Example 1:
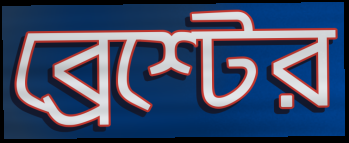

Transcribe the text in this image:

ব্রেশ্টের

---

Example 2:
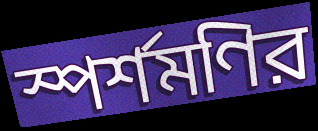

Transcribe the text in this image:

স্পর্শমণির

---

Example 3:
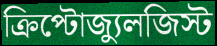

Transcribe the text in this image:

ক্রিপ্টোজ্যুলজিস্ট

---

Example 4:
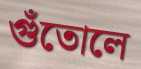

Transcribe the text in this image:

গুঁতোলে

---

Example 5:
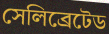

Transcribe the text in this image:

সেলিব্রেটেড